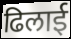
ढिलाई